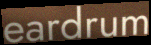
eardrum